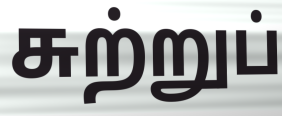
சுற்றுப்